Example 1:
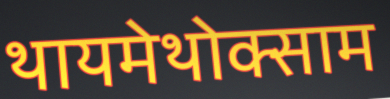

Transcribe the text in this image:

थायमेथोक्साम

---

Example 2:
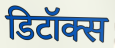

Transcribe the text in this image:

डिटॉक्स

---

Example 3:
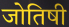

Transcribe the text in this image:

जोतिषी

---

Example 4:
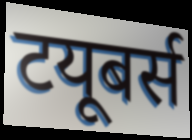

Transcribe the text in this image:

टयूबर्स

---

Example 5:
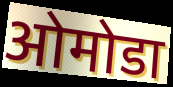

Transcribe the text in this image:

ओमोडा